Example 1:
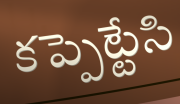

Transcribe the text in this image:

కప్పెట్టేసి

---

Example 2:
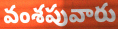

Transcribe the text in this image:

వంశపువారు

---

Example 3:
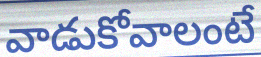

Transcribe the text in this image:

వాడుకోవాలంటే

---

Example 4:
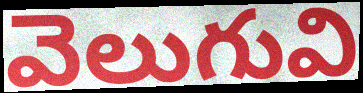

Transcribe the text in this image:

వెలుగువి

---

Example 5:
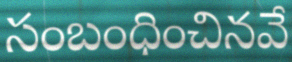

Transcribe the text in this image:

సంబంధించినవే